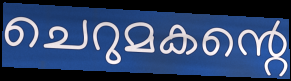
ചെറുമകന്റെ